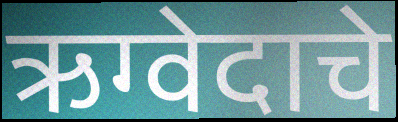
ऋग्वेदाचे